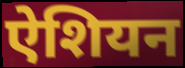
ऐशियन